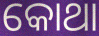
କୋଥା